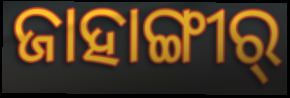
ଜାହାଙ୍ଗୀର୍